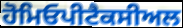
ਹੋਮਿਓਪੀਟੈਕਸੀਅਲ